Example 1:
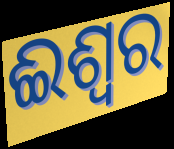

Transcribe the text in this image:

ଈଶ୍ଵର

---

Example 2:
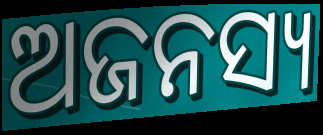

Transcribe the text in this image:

ଅଜନସ୍ୟ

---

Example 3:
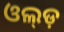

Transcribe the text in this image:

ଓଲ୍ଡ଼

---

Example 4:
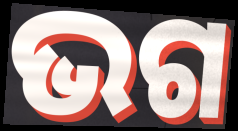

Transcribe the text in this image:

ଭଗ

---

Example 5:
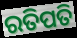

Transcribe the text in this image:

ରତିପତି